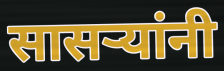
सासर्‍यांनी